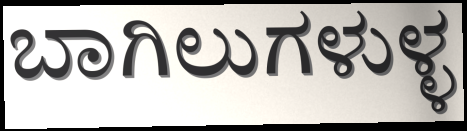
ಬಾಗಿಲುಗಳುಳ್ಳ